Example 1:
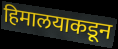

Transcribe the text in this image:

हिमालयाकडून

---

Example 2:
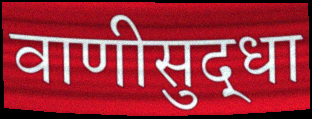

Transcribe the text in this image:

वाणीसुद्धा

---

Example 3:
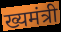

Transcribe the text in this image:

ख्यमंत्री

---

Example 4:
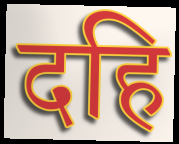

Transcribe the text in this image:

दहि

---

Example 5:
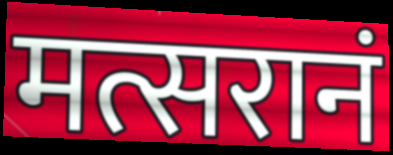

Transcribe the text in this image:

मत्सरानं